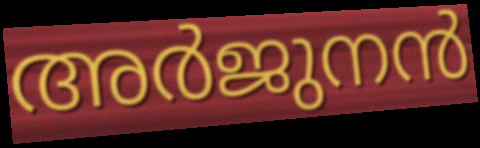
അർജുനൻ